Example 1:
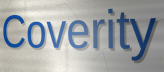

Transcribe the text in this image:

Coverity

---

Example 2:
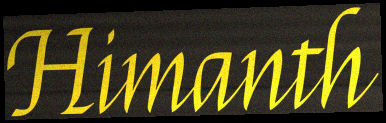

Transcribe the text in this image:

Himanth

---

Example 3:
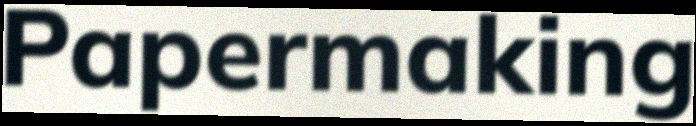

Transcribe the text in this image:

Papermaking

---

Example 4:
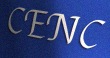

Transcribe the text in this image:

CENC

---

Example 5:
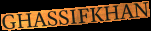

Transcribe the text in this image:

GHASSIFKHAN